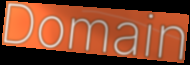
Domain